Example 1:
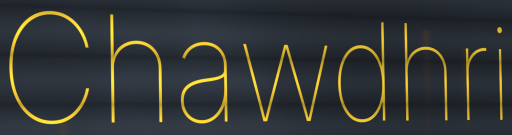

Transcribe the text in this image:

Chawdhri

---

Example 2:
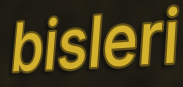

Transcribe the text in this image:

bisleri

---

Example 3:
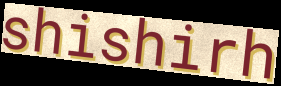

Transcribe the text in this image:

shishirh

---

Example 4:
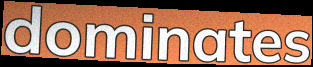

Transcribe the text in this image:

dominates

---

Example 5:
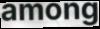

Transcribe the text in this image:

among